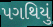
પગથિયું